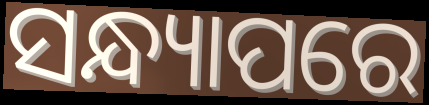
ସନ୍ଧ୍ୟାପରେ